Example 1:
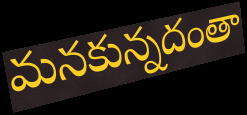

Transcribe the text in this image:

మనకున్నదంతా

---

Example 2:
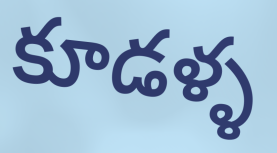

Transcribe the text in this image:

కూడళ్ళ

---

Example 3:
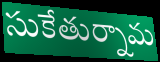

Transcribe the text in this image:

సుకేతుర్నామ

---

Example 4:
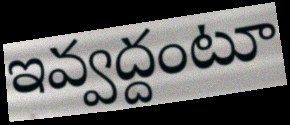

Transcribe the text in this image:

ఇవ్వద్దంటూ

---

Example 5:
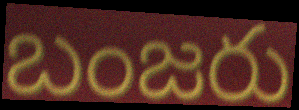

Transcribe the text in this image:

బంజరు